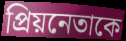
প্রিয়নেতাকে